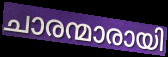
ചാരന്മാരായി